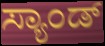
ಸ್ಯಾಂಡ್